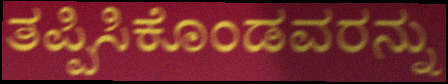
ತಪ್ಪಿಸಿಕೊಂಡವರನ್ನು